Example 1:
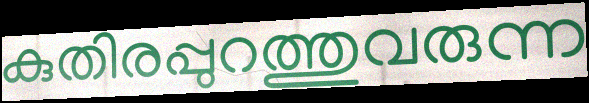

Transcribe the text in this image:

കുതിരപ്പുറത്തുവരുന്ന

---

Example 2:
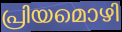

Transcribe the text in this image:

പ്രിയമൊഴി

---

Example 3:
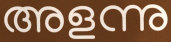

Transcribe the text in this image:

അളന്നു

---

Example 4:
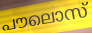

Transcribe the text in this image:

പൗലൊസ്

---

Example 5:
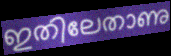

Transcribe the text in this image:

ഇതിലേതാണു